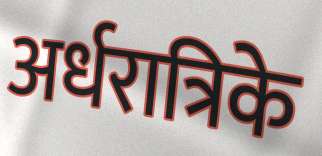
अर्धरात्रिके